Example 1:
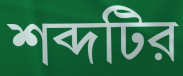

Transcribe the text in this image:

শব্দটির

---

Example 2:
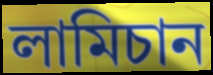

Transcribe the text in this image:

লামিচান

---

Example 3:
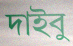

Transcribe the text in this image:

দাইবু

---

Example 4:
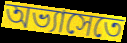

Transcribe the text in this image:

অভ্যাসেতে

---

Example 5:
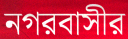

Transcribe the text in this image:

নগরবাসীর